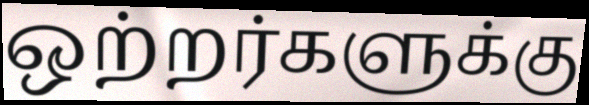
ஒற்றர்களுக்கு